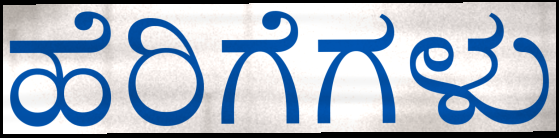
ಹೆರಿಗೆಗಳು